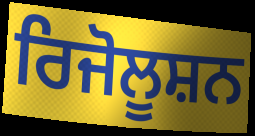
ਰਿਜੋਲੂਸ਼ਨ